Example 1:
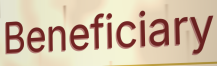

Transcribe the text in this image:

Beneficiary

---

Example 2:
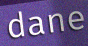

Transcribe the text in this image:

dane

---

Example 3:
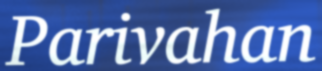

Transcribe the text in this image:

Parivahan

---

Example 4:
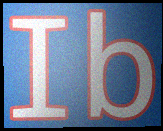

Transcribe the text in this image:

Ib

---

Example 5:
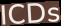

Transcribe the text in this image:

ICDs